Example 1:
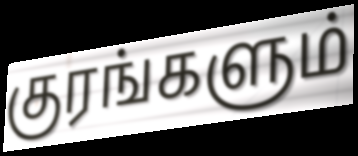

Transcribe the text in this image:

குரங்களும்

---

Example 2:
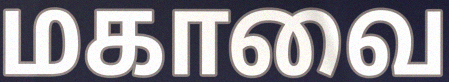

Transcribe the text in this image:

மகாவை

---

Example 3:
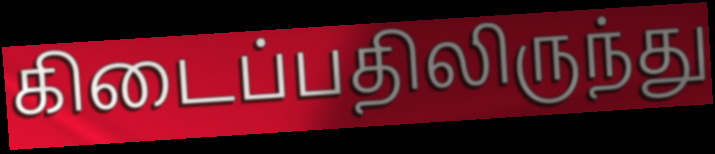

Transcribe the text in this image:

கிடைப்பதிலிருந்து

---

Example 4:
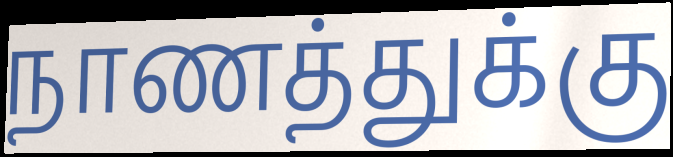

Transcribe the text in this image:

நாணத்துக்கு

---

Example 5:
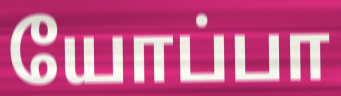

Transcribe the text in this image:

யோப்பா